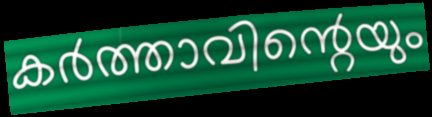
കർത്താവിന്റെയും